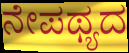
ನೇಪಥ್ಯದ